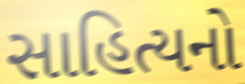
સાહિત્યનો